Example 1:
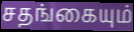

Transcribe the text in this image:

சதங்கையும்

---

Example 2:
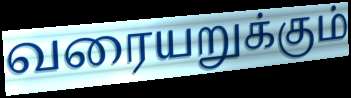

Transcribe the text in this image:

வரையறுக்கும்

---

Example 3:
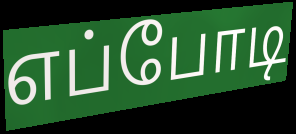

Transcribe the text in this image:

எப்போடி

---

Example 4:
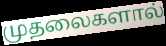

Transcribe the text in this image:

முதலைகளால்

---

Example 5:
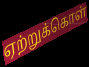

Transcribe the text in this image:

ஏற்றுக்கொள்